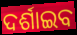
ଦର୍ଶାଇବ